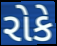
રોકે